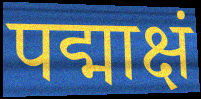
पद्माक्षं